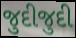
જુદીજુદી